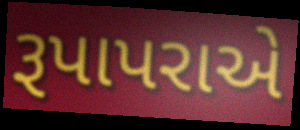
રૂપાપરાએ